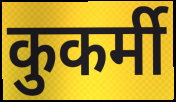
कुकर्मी